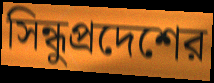
সিন্ধুপ্রদেশের